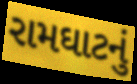
રામઘાટનું